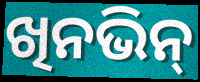
ଖିନଭିନ୍